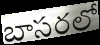
బాసరలో